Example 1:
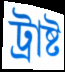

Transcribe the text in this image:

ট্রাষ্ট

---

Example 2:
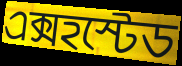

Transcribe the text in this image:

এক্সহস্টেড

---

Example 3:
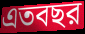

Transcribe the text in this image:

এতবছর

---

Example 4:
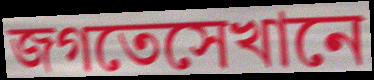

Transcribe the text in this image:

জগতেসেখানে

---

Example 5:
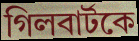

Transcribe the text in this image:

গিলবার্টকে